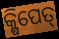
କ୍ଷିପେତ୍